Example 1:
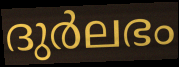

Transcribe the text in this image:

ദുർലഭം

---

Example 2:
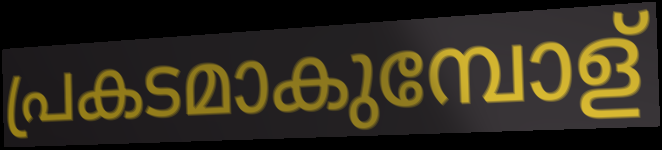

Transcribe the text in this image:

പ്രകടമാകുമ്പോള്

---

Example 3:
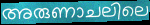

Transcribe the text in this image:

അരുണാചലിലെ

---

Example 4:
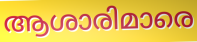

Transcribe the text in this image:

ആശാരിമാരെ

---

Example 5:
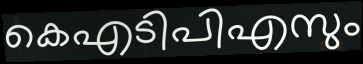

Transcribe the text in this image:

കെഎടിപിഎസും